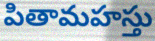
పితామహస్తు